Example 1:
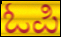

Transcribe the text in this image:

ಓಪಿ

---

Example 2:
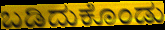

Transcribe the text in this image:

ಬಡಿದುಕೊಂಡು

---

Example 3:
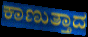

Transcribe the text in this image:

ಕಾಣುತ್ತಾದ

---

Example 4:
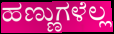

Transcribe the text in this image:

ಹಣ್ಣುಗಳೆಲ್ಲ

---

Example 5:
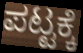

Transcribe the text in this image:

ಪಟ್ಟಕ್ಕೆ